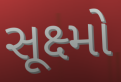
સૂક્ષ્મો